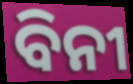
ବିନୀ